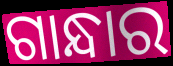
ଗାନ୍ଧାର